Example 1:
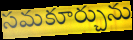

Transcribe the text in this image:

సమకూర్చును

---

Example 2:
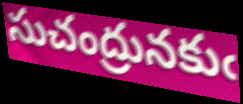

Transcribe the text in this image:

సుచంద్రునకుఁ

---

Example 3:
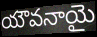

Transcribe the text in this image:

యౌవనాయై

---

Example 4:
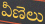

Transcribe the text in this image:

వీణెలు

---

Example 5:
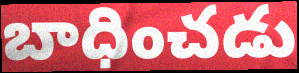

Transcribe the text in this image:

బాధించడు